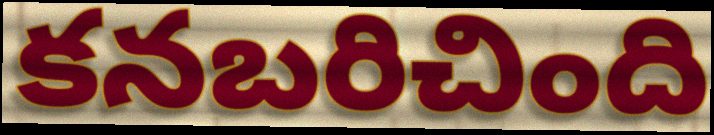
కనబరిచింది